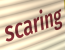
scaring